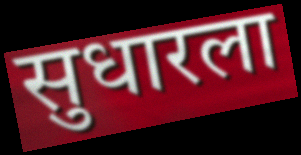
सुधारला